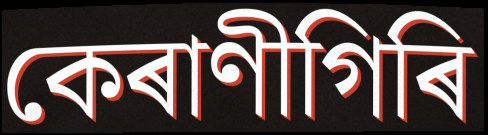
কেৰাণীগিৰি